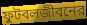
ফুটবলজীবনের